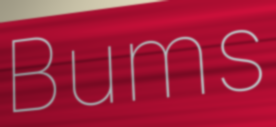
Bums